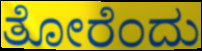
ತೋರೆಂದು